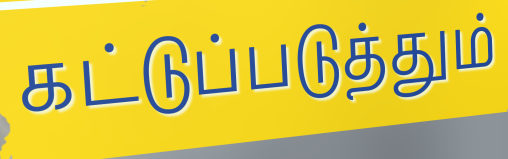
கட்டுப்படுத்தும்